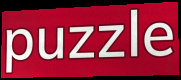
puzzle